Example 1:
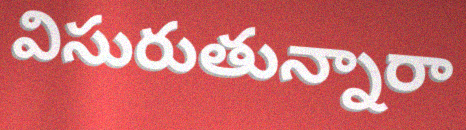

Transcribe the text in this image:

విసురుతున్నారా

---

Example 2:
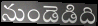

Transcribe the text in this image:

నుండెడిది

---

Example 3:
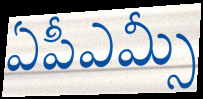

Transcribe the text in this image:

ఏపీఎమ్సీ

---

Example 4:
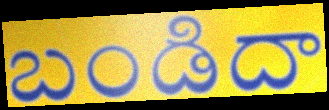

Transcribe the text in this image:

బండిదా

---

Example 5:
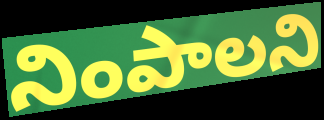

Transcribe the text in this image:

నింపాలని